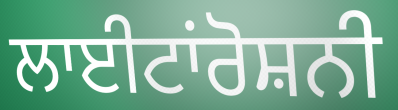
ਲਾਈਟਾਂਰੋਸ਼ਨੀ